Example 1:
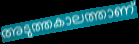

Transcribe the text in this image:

അടുത്തകാലത്താണ്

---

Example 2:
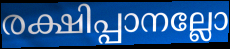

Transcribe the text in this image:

രക്ഷിപ്പാനല്ലോ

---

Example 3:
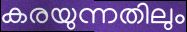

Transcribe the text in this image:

കരയുന്നതിലും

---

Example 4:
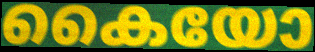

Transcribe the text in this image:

കൈയോ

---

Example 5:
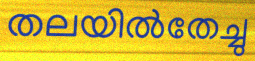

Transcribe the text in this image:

തലയിൽതേച്ചു